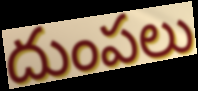
దుంపలు